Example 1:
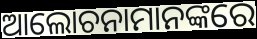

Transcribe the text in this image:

ଆଲୋଚନାମାନଙ୍କରେ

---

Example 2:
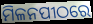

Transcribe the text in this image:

ମିଳନପୀଠରେ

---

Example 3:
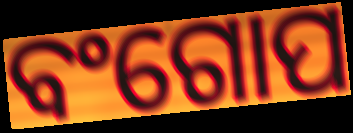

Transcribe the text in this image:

ବଂଗୋପ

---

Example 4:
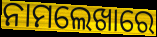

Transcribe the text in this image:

ନାମଲେଖାରେ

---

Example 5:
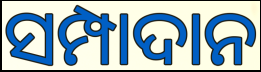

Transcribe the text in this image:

ସମ୍ପାଦାନ